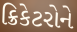
ક્રિકેટરોને